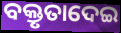
ବକ୍ତୃତାଦେଇ